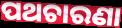
ପଥଚାରଣା